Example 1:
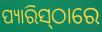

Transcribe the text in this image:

ପ୍ୟାରିସ୍‍ଠାରେ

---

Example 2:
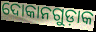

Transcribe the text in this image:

ଦୋକାନଗୁଡ଼ାକ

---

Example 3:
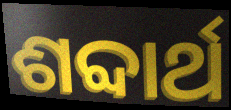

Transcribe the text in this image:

ଶବ୍ଦାର୍ଥ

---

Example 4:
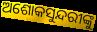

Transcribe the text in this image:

ଅଶୋକସୁନ୍ଦରୀଙ୍କୁ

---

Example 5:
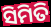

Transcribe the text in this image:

ସିମିତି